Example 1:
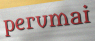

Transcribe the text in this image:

perumai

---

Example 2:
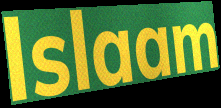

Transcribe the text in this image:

Islaam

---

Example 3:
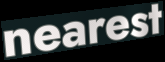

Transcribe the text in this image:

nearest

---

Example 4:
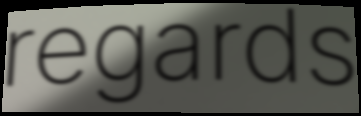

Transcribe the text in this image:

regards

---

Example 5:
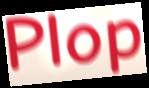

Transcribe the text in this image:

Plop